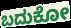
ಬದುಕೋ